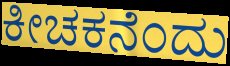
ಕೀಚಕನೆಂದು